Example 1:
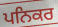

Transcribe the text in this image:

ਪਨਿਕਰ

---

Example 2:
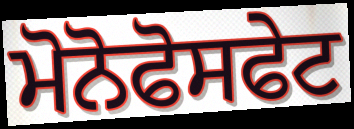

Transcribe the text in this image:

ਮੋਨੋਫੋਸਫੇਟ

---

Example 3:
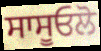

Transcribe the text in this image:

ਸਾਸੂਓਲੋ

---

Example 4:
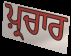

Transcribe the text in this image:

ਪ਼੍ਰਚਾਰ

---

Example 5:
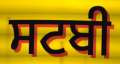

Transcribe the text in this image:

ਸਟਬੀ